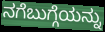
ನಗೆಬುಗ್ಗೆಯನ್ನು